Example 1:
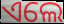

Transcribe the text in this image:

ଏଲେ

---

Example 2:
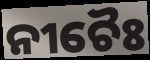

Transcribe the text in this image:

ନୀଚୈଃ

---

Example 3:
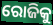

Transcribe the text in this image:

ରୋଜିକୁ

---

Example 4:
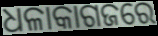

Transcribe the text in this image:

ଧଳାକାଗଜରେ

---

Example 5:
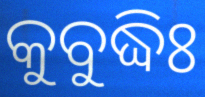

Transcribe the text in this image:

କୁବୁଦ୍ଧିଃ